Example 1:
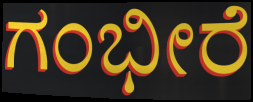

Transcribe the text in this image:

ಗಂಭೀರೆ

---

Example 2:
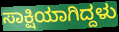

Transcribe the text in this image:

ಸಾಕ್ಷಿಯಾಗಿದ್ದಳು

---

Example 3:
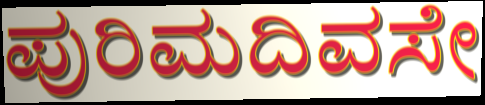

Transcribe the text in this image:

ಪುರಿಮದಿವಸೇ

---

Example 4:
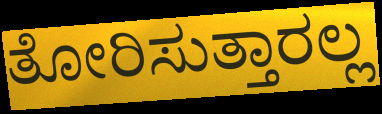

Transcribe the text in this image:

ತೋರಿಸುತ್ತಾರಲ್ಲ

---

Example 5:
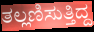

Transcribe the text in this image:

ತಲ್ಲಣಿಸುತ್ತಿದ್ದ